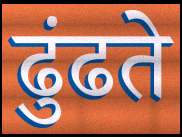
ढुंढते